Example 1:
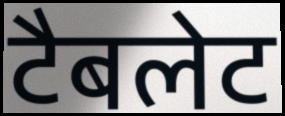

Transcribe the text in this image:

टैबलेट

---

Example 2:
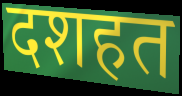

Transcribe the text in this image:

दशहत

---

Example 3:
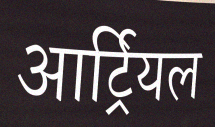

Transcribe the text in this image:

आर्ट्रियल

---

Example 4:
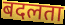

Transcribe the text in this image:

बदलता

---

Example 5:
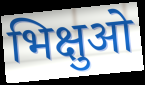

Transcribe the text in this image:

भिक्षुओ